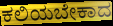
ಕಲಿಯಬೇಕಾದ